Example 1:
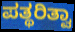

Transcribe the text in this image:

ಪತ್ಥರಿತ್ವಾ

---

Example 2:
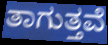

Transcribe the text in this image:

ತಾಗುತ್ತವೆ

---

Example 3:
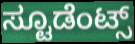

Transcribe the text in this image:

ಸ್ಟೂಡೆಂಟ್ಸ್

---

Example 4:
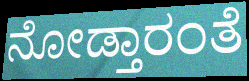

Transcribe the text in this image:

ನೋಡ್ತಾರಂತೆ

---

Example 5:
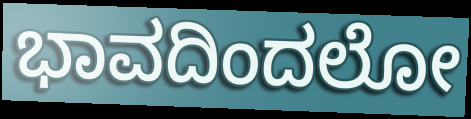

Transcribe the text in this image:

ಭಾವದಿಂದಲೋ